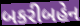
બકરીબહેન